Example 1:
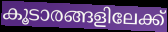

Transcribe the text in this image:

കൂടാരങ്ങളിലേക്ക്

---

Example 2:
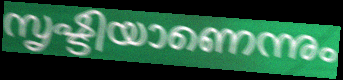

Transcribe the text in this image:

സൃഷ്ടിയാണെന്നും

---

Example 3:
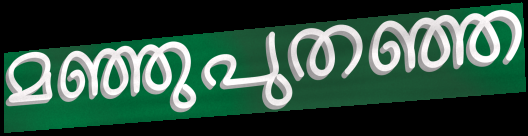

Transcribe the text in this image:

മഞ്ഞുപുതഞ്ഞ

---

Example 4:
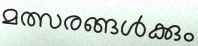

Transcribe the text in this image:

മത്സരങ്ങൾക്കും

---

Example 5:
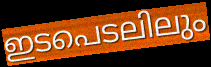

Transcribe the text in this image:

ഇടപെടലിലും